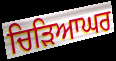
ਚਿੜਿਆਘਰ